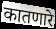
कातणारे